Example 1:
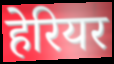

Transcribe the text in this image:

हेरियर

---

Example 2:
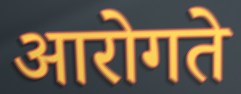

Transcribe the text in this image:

आरोगते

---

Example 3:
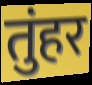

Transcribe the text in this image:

तुंहर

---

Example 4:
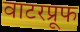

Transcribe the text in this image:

वाटरप्रूफ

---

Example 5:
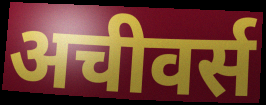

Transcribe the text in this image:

अचीवर्स